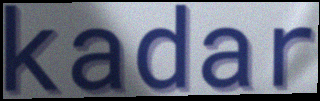
kadar